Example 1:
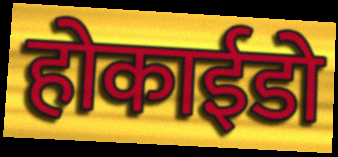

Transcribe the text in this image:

होकाईडो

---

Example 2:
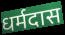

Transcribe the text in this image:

धर्मदास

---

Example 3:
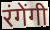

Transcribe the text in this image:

रंगेंगी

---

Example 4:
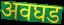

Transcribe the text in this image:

अवघड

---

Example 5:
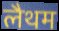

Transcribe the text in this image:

लैथम